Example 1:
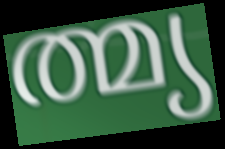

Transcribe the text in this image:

ത്മ്യ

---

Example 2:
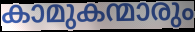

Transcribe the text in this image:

കാമുകന്മാരും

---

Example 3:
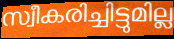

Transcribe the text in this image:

സ്വീകരിച്ചിട്ടുമില്ല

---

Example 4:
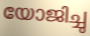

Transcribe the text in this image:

യോജിച്ചു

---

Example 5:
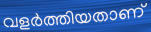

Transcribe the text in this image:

വളർത്തിയതാണ്